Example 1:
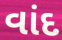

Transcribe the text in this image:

વાંદ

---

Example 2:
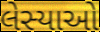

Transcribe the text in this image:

લેસ્યાઓ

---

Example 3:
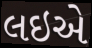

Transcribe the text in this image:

લઇએ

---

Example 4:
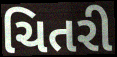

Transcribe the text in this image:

ચિતરી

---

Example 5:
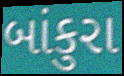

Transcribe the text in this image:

બાંકુરા